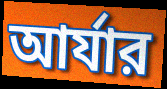
আর্যার